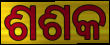
ଶଶକ